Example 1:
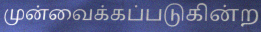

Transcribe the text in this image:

முன்வைக்கப்படுகின்ற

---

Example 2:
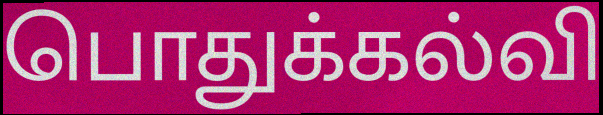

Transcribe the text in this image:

பொதுக்கல்வி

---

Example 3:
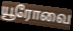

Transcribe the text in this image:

யூரோவை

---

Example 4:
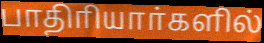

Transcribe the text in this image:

பாதிரியார்களில்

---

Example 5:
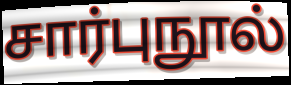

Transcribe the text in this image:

சார்புநூல்